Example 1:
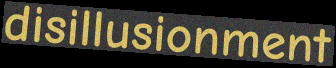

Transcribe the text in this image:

disillusionment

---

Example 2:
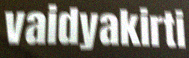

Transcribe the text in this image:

vaidyakirti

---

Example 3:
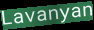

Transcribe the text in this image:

Lavanyan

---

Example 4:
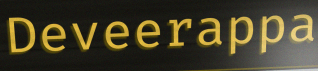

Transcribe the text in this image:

Deveerappa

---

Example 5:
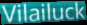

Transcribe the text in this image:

Vilailuck